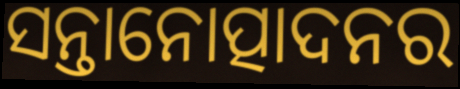
ସନ୍ତାନୋତ୍ପାଦନର